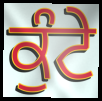
ਕੁੰਟੇ